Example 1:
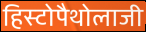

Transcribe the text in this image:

हिस्टोपैथोलाजी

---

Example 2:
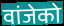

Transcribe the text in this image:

वांजेको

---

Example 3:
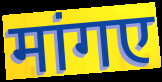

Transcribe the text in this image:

मांगए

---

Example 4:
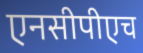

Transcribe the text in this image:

एनसीपीएच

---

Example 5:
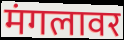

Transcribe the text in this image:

मंगलावर